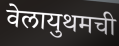
वेलायुथमची